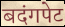
बदंगपेट